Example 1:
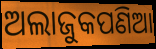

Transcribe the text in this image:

ଅଲାଜୁକପଣିଆ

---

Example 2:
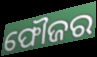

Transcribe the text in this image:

ଫୌଜର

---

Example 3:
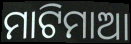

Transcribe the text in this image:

ମାଟିମାଆ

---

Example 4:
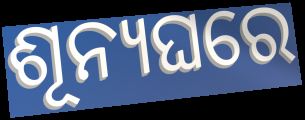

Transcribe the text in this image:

ଶୂନ୍ୟଘରେ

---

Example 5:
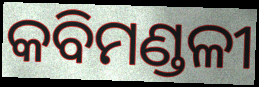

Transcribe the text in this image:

କବିମଣ୍ଡଳୀ